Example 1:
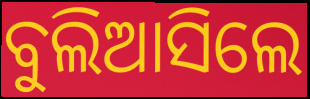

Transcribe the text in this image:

ବୁଲିଆସିଲେ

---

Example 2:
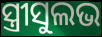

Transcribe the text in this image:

ସ୍ତ୍ରୀସୁଲଭ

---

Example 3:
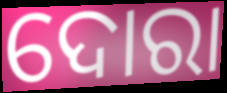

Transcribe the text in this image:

ଦୋରା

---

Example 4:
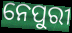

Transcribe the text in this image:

ନେପୁରୀ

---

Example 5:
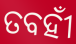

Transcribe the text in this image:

ତବହୀଁ